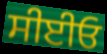
ਸੀਈਓ